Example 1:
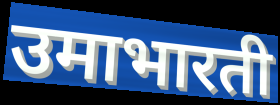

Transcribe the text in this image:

उमाभारती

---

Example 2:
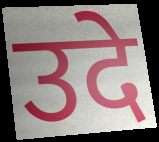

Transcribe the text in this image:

उदे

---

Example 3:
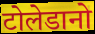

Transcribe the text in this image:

टोलेडानो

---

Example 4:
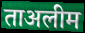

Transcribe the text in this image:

ताअलीम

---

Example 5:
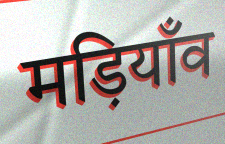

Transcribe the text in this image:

मड़ियाँव